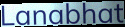
Lanabhat